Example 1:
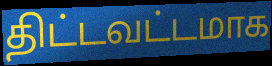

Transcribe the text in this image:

திட்டவட்டமாக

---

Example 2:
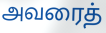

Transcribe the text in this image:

அவரைத்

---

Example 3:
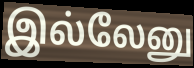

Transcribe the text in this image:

இல்லேனு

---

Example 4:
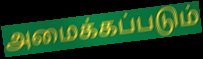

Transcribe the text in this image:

அமைக்கப்படும்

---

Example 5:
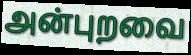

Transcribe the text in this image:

அன்புறவை